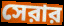
সেরার